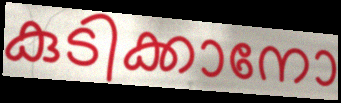
കുടിക്കാനോ